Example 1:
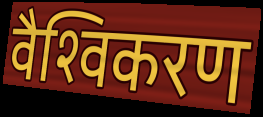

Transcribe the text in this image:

वैश्विकरण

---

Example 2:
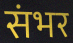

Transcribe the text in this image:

संभर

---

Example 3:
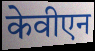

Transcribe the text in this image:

केवीएन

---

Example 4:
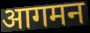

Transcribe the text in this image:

आगमन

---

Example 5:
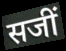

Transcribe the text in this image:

सजीं